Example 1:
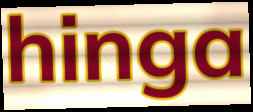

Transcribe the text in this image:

hinga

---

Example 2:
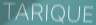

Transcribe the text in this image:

TARIQUE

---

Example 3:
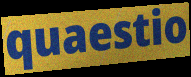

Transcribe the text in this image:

quaestio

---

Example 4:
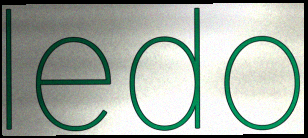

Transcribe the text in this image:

ledo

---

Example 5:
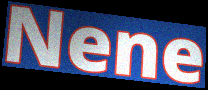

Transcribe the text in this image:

Nene